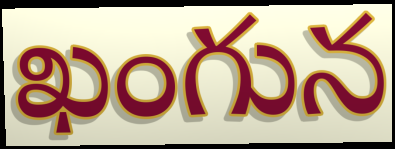
ఖంగున